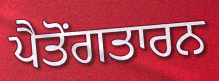
ਪੈਤੋਂਗਤਾਰਨ